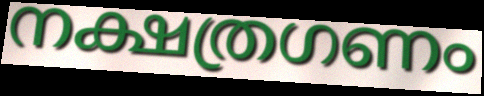
നക്ഷത്രഗണം